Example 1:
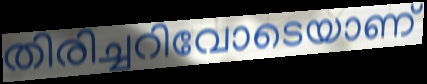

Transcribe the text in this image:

തിരിച്ചറിവോടെയാണ്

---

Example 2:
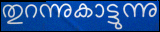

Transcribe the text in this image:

തുറന്നുകാട്ടുന്നു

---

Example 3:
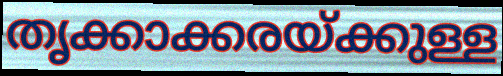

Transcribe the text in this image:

തൃക്കാക്കരയ്ക്കുള്ള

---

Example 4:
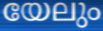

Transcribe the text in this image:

യേലും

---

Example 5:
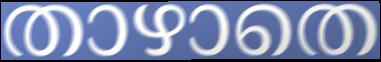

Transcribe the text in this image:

താഴാതെ